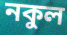
নকুল